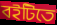
বইটিতে